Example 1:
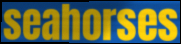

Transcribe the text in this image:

seahorses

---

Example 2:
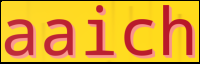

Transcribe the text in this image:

aaich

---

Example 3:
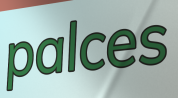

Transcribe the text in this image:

palces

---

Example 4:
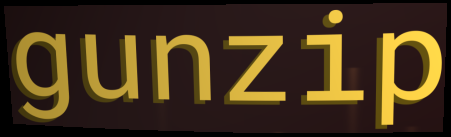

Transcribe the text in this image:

gunzip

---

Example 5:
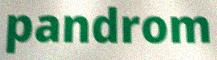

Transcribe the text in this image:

pandrom